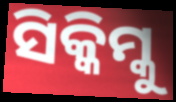
ସିକ୍କିମ୍କୁ